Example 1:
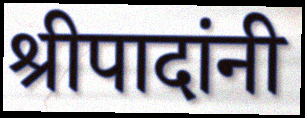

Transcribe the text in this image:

श्रीपादांनी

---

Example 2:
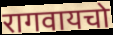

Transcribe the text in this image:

रागवायचो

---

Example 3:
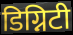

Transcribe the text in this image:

डिग्निटी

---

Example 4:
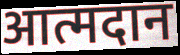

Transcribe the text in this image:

आत्मदान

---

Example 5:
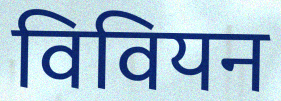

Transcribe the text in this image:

विवियन